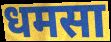
धमसा